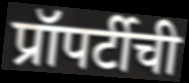
प्रॉपर्टीची